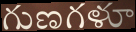
గుణగళూ